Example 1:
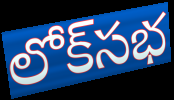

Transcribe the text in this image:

లోక్‌సభ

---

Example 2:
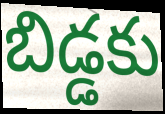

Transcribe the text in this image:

బిడ్డకు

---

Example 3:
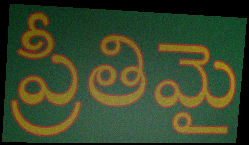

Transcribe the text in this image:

ప్రీతిమై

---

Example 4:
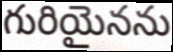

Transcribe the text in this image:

గురియైనను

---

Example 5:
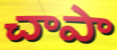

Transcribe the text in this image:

చాపా